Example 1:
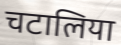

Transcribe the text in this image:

चटालिया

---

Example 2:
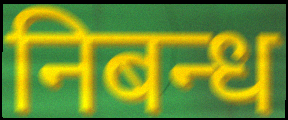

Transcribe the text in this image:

निबन्‍ध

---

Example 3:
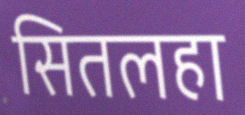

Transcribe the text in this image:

सितलहा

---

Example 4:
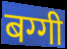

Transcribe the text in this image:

बग्‍गी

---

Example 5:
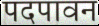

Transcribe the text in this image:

पदपावन